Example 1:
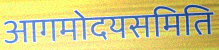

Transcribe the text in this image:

आगमोदयसमिति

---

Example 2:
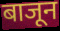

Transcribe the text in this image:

बाजून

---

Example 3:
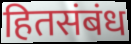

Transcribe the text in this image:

हितसंबंध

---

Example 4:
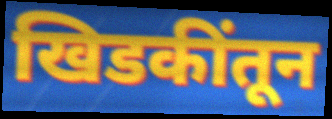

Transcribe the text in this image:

खिडकींतून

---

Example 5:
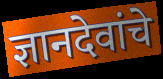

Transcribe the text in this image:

ज्ञानदेवांचे